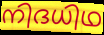
നിദധിഥ